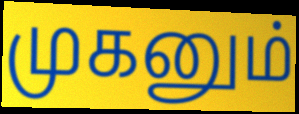
முகனும்